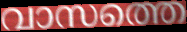
വാസത്തെ